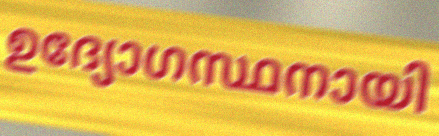
ഉദ്യോഗസ്ഥനായി